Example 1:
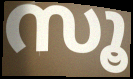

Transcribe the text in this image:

സൂ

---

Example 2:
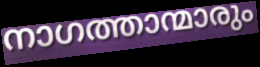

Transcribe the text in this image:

നാഗത്താന്മാരും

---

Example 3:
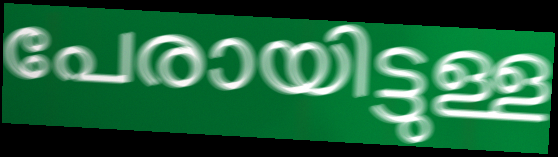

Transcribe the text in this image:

പേരായിട്ടുള്ള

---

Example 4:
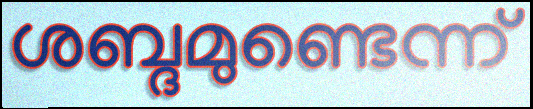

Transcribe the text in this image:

ശബ്ദമുണ്ടെന്ന്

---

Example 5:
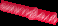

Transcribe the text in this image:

ഖബറാളികൾ